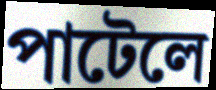
পাটেলে